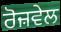
ਰੋਜ਼ਵੇਲ